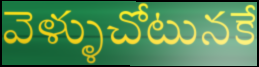
వెళ్ళుచోటునకే